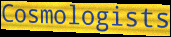
Cosmologists